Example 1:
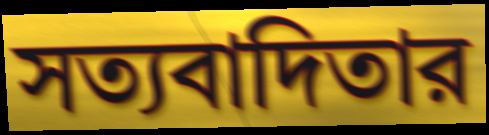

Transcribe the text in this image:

সত্যবাদিতার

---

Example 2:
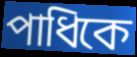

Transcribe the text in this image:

পাধিকে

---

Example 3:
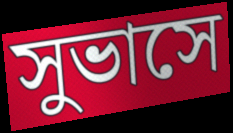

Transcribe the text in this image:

সুভাসে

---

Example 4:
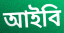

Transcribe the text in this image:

আইবি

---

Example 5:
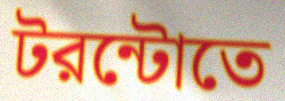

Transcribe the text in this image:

টরন্টোতে